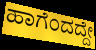
ಹಾಗೆಂದದ್ದೇ